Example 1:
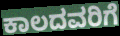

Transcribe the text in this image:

ಕಾಲದವರಿಗೆ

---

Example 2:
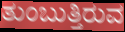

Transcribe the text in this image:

ತುಂಬುತ್ತಿರುವ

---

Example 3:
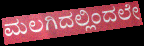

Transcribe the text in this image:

ಮಲಗಿದಲ್ಲಿಂದಲೇ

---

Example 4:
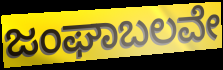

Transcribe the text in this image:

ಜಂಘಾಬಲವೇ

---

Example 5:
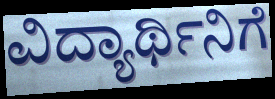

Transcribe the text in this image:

ವಿದ್ಯಾರ್ಥಿನಿಗೆ